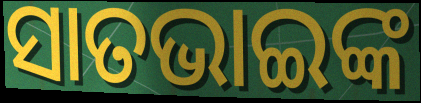
ସାତଭାଇଙ୍କ